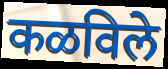
कळविले